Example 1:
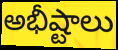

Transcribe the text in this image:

అభీష్టాలు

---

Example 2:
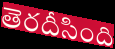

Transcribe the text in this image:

తెరదీసింది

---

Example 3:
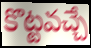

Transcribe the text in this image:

కొట్టవచ్చే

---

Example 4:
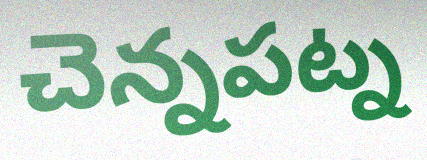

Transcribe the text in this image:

చెన్నపట్న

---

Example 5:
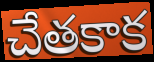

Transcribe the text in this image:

చేతకాక